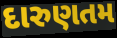
દારુણતમ